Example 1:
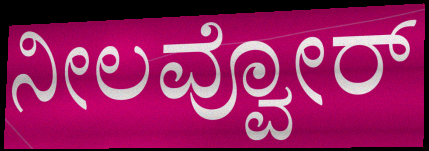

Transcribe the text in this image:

ನೀಲವ್ವೋರ್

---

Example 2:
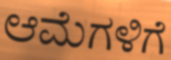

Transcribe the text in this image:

ಆಮೆಗಳಿಗೆ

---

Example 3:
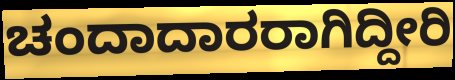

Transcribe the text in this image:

ಚಂದಾದಾರರಾಗಿದ್ದೀರಿ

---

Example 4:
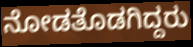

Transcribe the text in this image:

ನೋಡತೊಡಗಿದ್ದರು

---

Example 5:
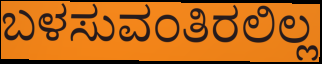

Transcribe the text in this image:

ಬಳಸುವಂತಿರಲಿಲ್ಲ